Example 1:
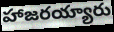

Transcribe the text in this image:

హాజరయ్యారు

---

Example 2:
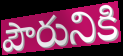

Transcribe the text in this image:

పౌరునికి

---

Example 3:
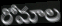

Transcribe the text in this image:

రోమాల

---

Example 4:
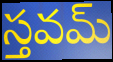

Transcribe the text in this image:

స్తవమ్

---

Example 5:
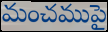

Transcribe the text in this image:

మంచముపై